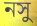
নসু